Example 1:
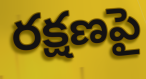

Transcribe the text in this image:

రక్షణపై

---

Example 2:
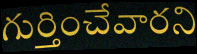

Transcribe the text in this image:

గుర్తించేవారని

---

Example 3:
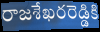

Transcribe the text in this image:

రాజశేఖరరెడ్డికి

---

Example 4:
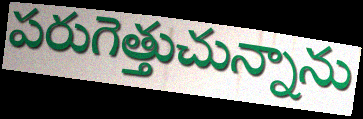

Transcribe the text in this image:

పరుగెత్తుచున్నాను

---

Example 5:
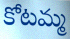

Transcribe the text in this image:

కోటమ్మ